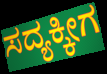
ಸದ್ಯಕ್ಕೀಗ